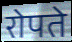
रोपते